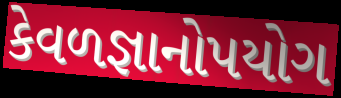
કેવળજ્ઞાનોપયોગ